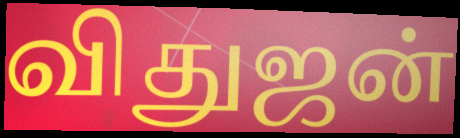
விதுஜன்